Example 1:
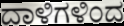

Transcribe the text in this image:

ದಾಳಿಗಳಿಂದ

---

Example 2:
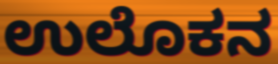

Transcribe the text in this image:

ಉಲೊಕನ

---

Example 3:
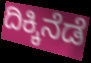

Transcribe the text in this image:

ದಿಕ್ಕಿನೆಡೆ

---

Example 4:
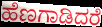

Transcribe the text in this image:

ಹೆಣಗಾಡಿದರೆ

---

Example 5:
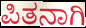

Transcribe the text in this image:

ಪಿತನಾಗಿ